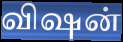
விஷன்